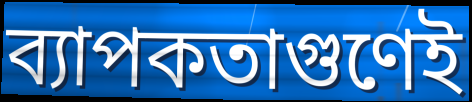
ব্যাপকতাগুণেই